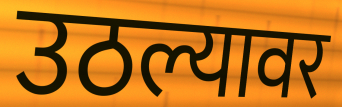
उठल्यावर